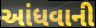
આંધવાની